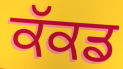
ਕੱਕਡ